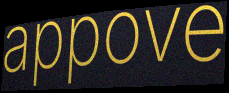
appove